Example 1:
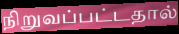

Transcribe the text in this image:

நிறுவப்பட்டதால்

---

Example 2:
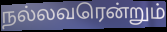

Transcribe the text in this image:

நல்லவரென்றும்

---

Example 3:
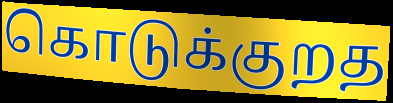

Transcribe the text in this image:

கொடுக்குறத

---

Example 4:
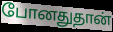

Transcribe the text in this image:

போனதுதான்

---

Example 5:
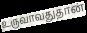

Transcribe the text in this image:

உருவாவதுதான்